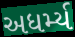
અધર્મ્ય